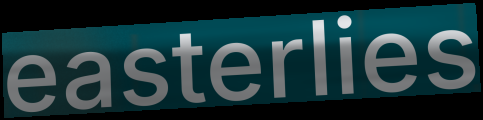
easterlies